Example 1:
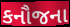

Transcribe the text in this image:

કનૌજના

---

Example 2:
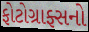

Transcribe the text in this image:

ફોટોગ્રાફ્સનો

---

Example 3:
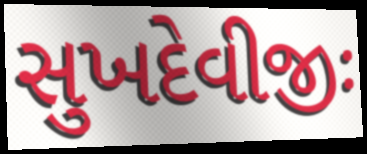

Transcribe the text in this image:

સુખદેવીજીઃ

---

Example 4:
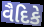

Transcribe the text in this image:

વૈદિકે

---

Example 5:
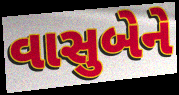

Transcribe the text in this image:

વાસુબેને